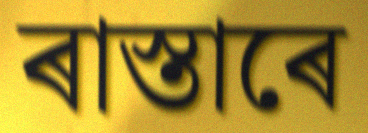
ৰাস্তাৰে